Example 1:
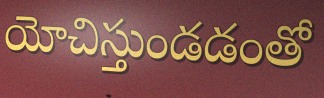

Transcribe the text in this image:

యోచిస్తుండడంతో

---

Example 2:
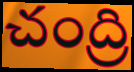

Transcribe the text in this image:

చంద్రి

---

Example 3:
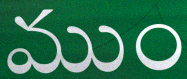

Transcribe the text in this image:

ముం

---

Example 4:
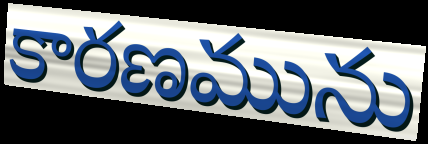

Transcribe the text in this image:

కారణమును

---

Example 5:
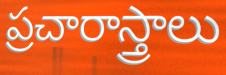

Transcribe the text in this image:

ప్రచారాస్త్రాలు